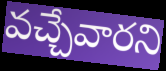
వచ్చేవారని